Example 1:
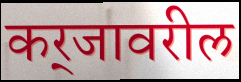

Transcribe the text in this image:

कर्जावरील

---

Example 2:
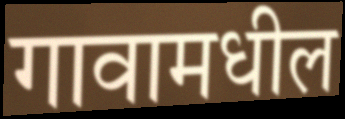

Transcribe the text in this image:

गावामधील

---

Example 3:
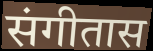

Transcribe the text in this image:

संगीतास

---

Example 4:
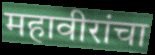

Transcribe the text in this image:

महावीरांचा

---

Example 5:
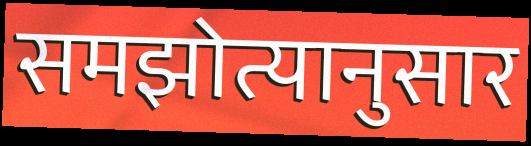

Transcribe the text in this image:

समझोत्यानुसार